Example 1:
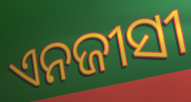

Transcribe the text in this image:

ଏନଜୀସୀ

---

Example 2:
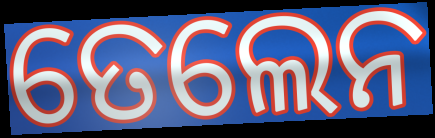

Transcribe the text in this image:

ତେଲେନ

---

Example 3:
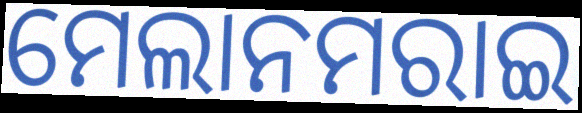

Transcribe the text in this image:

ମେଲାନମରାଇ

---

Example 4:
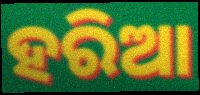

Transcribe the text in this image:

ହରିଆ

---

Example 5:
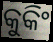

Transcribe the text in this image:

କୁକିଂ